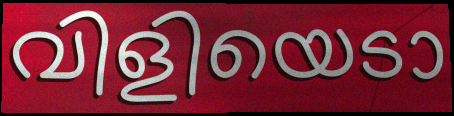
വിളിയെടാ